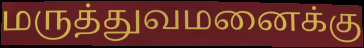
மருத்துவமனைக்கு